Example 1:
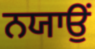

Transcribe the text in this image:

ਨਯਾਉਂ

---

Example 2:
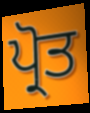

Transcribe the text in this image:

ਪ੍ਰੋਤ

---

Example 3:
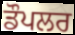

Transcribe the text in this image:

ਡੌਪਲਰ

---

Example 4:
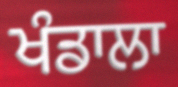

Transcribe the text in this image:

ਖੰਡਾਲਾ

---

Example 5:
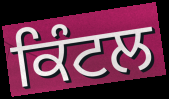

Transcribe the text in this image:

ਕਿੰਟਲ